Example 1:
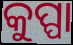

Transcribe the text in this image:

କୁପ୍ପା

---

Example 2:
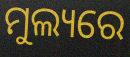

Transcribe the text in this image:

ମୁଲ୍ୟରେ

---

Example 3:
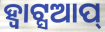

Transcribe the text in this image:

ହ୍ବାଟ୍ସଆପ୍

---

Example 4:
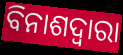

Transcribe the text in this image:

ବିନାଶଦ୍ଵାରା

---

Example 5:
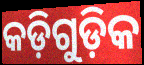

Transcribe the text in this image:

କଡ଼ିଗୁଡ଼ିକ